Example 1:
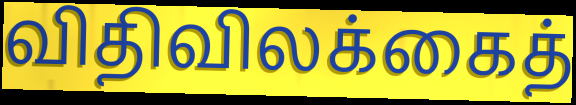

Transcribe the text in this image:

விதிவிலக்கைத்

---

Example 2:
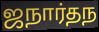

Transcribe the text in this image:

ஜநார்தந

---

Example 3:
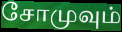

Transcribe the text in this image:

சோமுவும்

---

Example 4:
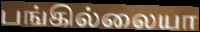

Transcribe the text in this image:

பங்கில்லையா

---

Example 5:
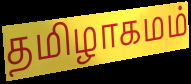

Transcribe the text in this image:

தமிழாகமம்